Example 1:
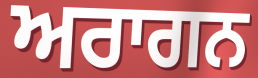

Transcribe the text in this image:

ਅਰਾਗਨ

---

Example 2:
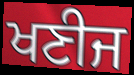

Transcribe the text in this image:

ਖਣੀਜ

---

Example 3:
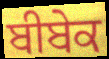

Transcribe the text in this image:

ਬੀਬੇਕ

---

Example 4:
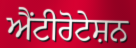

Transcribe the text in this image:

ਐਂਟੀਰੋਟੇਸ਼ਨ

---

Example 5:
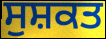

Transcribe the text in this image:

ਸੁਸ਼ਕਤ